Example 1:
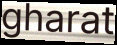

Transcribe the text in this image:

gharat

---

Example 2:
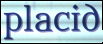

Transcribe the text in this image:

placid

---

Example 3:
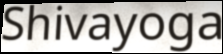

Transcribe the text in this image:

Shivayoga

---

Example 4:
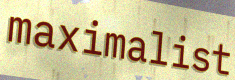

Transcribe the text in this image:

maximalist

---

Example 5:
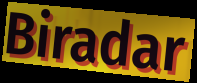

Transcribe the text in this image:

Biradar